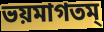
ভয়মাগতম্